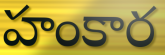
హంకార